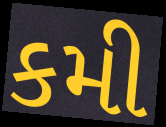
કમી